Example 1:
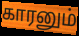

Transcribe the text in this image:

காரனும்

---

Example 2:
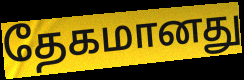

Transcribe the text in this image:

தேகமானது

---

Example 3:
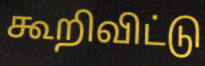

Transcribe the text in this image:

கூறிவிட்டு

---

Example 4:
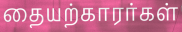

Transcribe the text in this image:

தையற்காரர்கள்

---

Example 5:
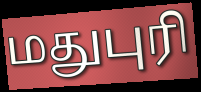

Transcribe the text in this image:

மதுபுரி